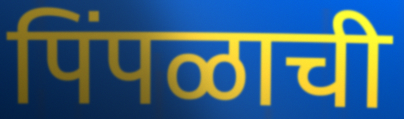
पिंपळाची